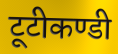
टूटीकण्डी